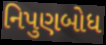
નિપુણબોધ